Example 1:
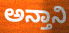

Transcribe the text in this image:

ಅನ್ತಾನಿ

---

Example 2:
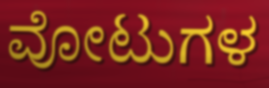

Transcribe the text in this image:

ವೋಟುಗಳ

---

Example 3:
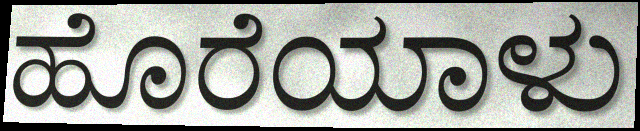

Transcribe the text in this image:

ಹೊರೆಯಾಳು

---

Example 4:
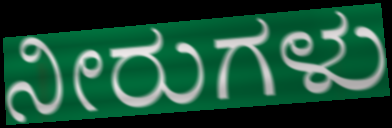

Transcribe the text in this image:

ನೀರುಗಳು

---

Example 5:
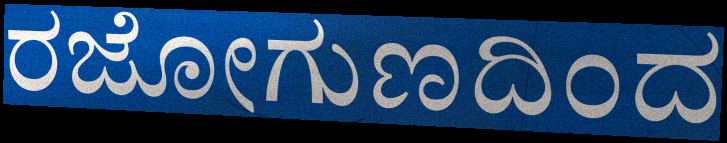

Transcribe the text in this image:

ರಜೋಗುಣದಿಂದ